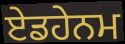
ਏਡਹੇਨਮ